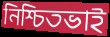
নিশ্চিতভাই